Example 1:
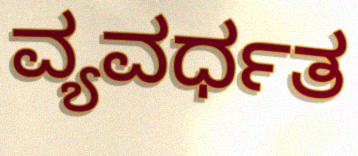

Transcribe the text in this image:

ವ್ಯವರ್ಧತ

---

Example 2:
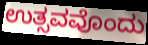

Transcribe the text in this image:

ಉತ್ಸವವೊಂದು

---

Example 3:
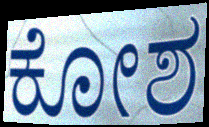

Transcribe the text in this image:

ಕೋಶ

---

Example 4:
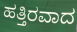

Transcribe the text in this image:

ಹತ್ತಿರವಾದ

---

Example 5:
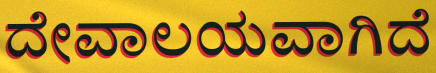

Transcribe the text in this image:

ದೇವಾಲಯವಾಗಿದೆ